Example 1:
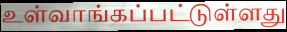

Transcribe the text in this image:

உள்வாங்கப்பட்டுள்ளது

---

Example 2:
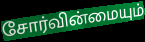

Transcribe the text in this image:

சோர்வின்மையும்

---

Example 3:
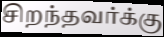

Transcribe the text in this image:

சிறந்தவர்க்கு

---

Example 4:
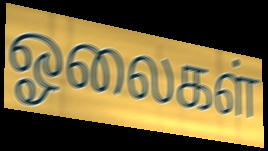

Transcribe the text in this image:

ஓலைகள்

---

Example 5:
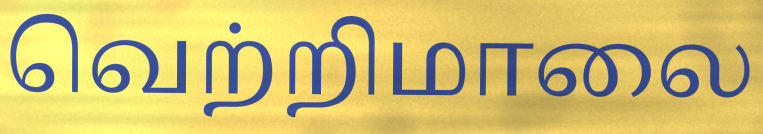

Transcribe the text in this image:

வெற்றிமாலை